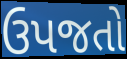
ઉપજતો